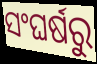
ସଂଘର୍ଷରୁ